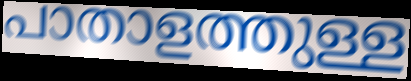
പാതാളത്തുള്ള